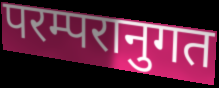
परम्परानुगत